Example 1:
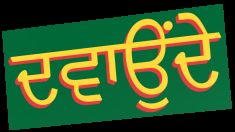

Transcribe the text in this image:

ਦਵਾਉਂਦੇ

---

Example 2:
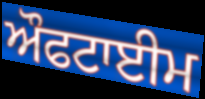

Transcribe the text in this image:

ਔਫਟਾਈਮ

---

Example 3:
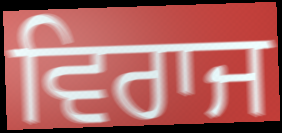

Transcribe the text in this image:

ਵਿਰਾਜ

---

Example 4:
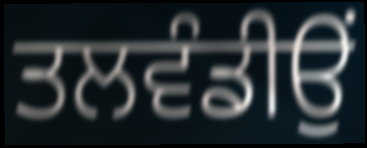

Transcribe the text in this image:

ਤਲਵੰਡੀਉਂ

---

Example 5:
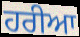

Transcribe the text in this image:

ਹਰੀਆ